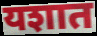
यशात